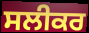
ਸਲੀਕਰ